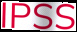
IPSS